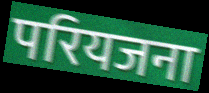
परियजना